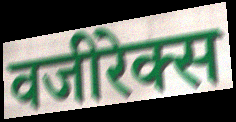
वजीरेक्स